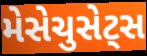
મેસેચુસેટ્સ